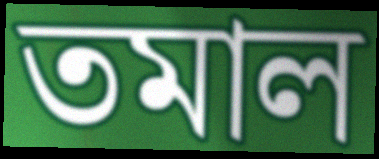
তমাল